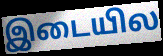
இடையில